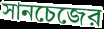
সানচেজের